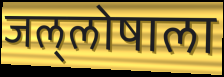
जल्लोषाला